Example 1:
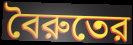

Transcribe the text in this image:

বৈরুতের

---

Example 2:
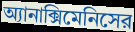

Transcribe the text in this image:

অ্যানাক্সিমেনিসের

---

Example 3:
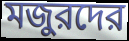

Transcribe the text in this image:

মজুরদের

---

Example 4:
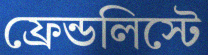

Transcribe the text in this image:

ফ্রেন্ডলিস্টে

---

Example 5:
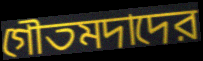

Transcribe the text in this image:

গৌতমদাদের